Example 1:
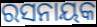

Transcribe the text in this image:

ରସନାୟକ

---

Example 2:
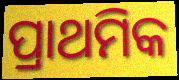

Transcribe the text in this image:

ପ୍ରାଥମିକ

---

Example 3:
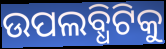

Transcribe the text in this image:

ଉପଲବ୍ଧିଟିକୁ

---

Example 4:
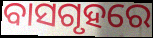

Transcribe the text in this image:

ବାସଗୃହରେ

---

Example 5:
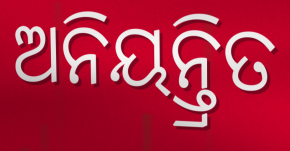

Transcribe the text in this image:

ଅନିୟନ୍ତ୍ରିତ